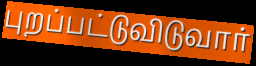
புறப்பட்டுவிடுவார்